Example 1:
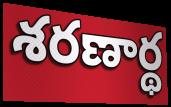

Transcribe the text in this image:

శరణార్థ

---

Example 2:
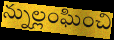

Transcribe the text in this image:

న్నుల్లంఘించి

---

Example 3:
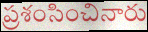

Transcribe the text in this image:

ప్రశంసించినారు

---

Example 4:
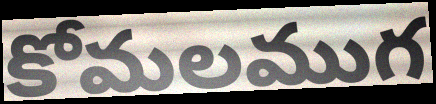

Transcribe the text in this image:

కోమలముగ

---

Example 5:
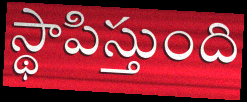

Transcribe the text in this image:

స్థాపిస్తుంది